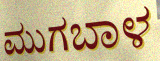
ಮುಗಬಾಳ